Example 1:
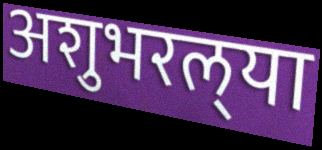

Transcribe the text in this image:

अश्रुभरल्या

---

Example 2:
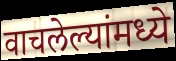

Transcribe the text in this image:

वाचलेल्यांमध्ये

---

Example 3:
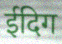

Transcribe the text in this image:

ईदिग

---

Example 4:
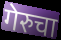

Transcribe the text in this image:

गेरुचा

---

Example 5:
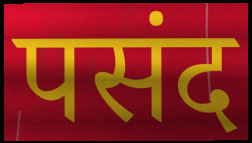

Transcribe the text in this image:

पसंद